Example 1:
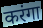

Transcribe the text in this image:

करंगा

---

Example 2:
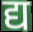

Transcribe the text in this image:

द्य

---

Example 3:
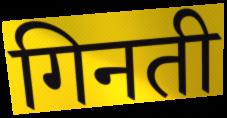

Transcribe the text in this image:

गिनती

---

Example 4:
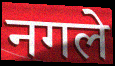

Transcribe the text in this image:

नगले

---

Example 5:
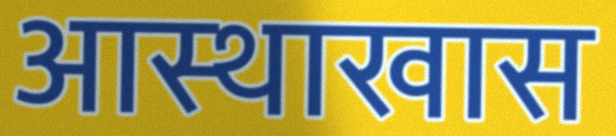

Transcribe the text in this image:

आस्थाखास